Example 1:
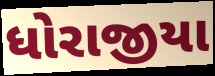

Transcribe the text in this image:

ધોરાજીયા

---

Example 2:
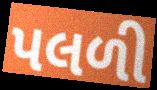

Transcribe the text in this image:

પલળી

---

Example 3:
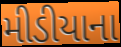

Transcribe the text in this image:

મીડીયાના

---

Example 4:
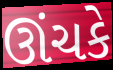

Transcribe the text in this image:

ઊંચકે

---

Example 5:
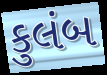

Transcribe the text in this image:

કુલંબ